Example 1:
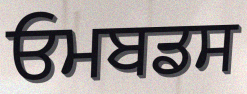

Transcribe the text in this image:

ਓਮਬਡਸ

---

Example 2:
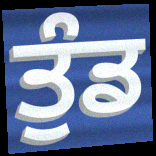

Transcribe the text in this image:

ਤੁੰਡ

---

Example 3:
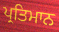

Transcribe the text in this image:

ਪ੍ਰਤਿਮਾਨ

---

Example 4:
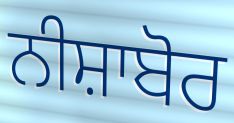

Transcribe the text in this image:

ਨੀਸ਼ਾਬੋਰ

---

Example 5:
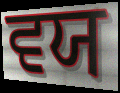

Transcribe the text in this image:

ਵਯ